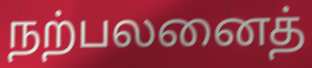
நற்பலனைத்